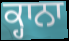
ਕ੍ਹਾਨਾ